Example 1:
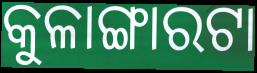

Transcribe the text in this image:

କୁଳାଙ୍ଗାରଟା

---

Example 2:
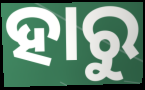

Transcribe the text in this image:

ହାରୁ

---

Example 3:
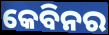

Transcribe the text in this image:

କେବିନର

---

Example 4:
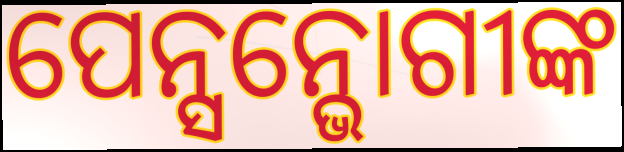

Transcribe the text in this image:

ପେନ୍ସନ୍ଭୋଗୀଙ୍କ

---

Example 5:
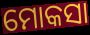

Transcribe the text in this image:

ମୋକସା